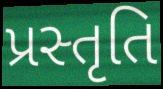
પ્રસ્તૃતિ